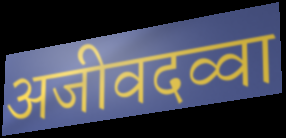
अजीवदव्वा